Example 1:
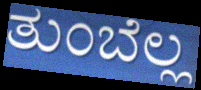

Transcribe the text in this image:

ತುಂಬೆಲ್ಲ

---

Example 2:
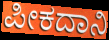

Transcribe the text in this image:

ಪೀಕದಾನಿ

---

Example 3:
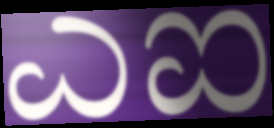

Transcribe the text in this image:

ಎಐ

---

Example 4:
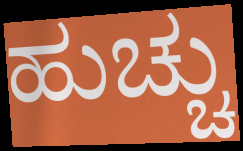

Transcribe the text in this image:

ಹುಚ್ಚು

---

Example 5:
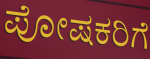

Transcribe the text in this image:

ಪೋಷಕರಿಗೆ